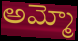
అమ్మో